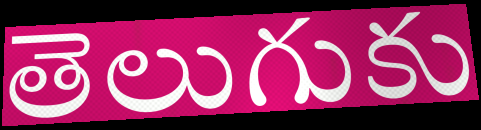
తెలుగుకు